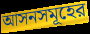
আসনসমূহের